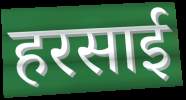
हरसाई